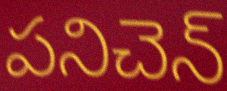
పనిచెన్